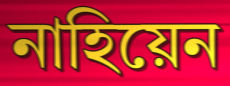
নাহিয়েন